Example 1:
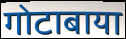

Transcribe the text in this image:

गोटाबाया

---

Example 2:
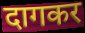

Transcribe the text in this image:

दागकर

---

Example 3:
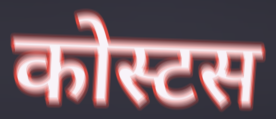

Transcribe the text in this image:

कोस्टस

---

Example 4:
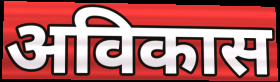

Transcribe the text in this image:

अविकास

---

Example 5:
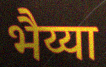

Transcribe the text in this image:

भैय्या